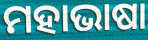
ମହାଭାଷା